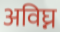
अविघ्न